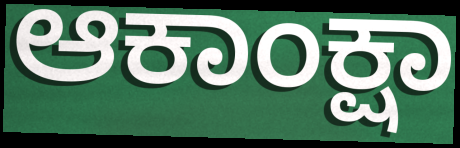
ಆಕಾಂಕ್ಷಾ